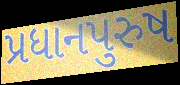
પ્રધાનપુરુષ